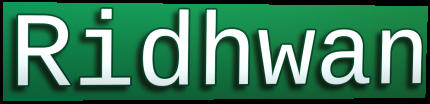
Ridhwan